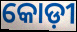
କୋଡ଼ୀ